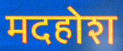
मदहोश